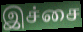
இச்சை